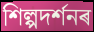
শিল্পদৰ্শনৰ